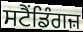
ਸਟੈਂਡਿੰਗਜ਼